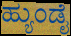
ಹ್ಯುಂಡೈ